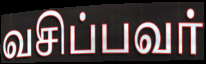
வசிப்பவர்